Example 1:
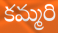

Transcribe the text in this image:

కమ్మరి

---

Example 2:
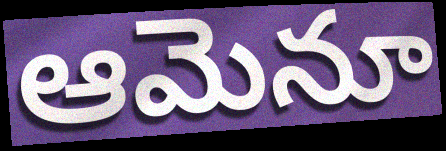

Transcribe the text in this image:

ఆమెనూ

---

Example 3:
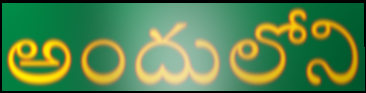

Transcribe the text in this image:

అందులోని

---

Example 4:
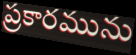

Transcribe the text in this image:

ప్రకారమును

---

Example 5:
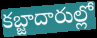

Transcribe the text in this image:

కబ్జాదారుల్లో